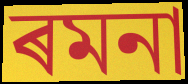
ৰমনা